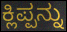
ಕ್ಲಿಪ್ಪನ್ನು